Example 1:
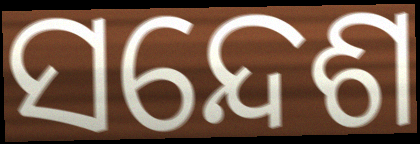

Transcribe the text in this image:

ସନ୍ଦେଶ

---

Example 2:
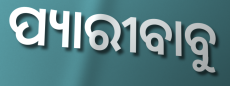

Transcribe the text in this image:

ପ୍ୟାରୀବାବୁ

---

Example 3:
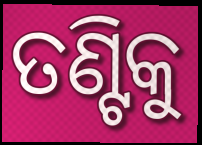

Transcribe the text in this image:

ତଣ୍ଟିକୁ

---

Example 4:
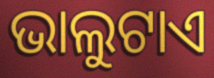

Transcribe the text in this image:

ଭାଲୁଟାଏ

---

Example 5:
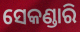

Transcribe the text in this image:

ସେକଣ୍ଡାରି